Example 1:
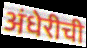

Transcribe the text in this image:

अंधेरीची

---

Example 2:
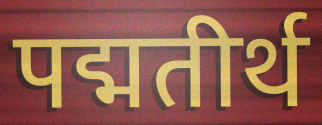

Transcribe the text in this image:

पद्मतीर्थ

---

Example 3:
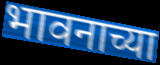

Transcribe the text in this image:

भावनाच्या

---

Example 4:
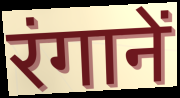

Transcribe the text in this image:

रंगानें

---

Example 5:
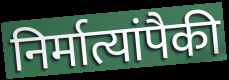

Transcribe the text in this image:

निर्मात्यांपैकी